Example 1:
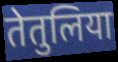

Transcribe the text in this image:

तेतुलिया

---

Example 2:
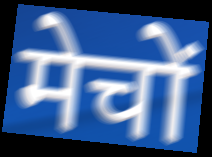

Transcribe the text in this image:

मेचों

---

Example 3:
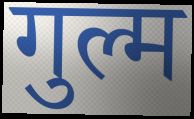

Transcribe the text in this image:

गुल्म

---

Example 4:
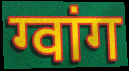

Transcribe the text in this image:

ग्वांग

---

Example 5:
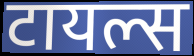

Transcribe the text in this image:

टायल्स